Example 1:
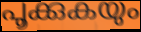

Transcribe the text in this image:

പൂക്കുകയും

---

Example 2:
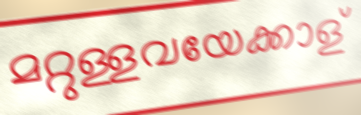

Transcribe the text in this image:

മറ്റുള്ളവയേക്കാള്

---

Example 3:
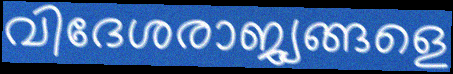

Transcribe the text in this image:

വിദേശരാജ്യങ്ങളെ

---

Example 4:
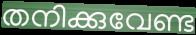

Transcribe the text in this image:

തനിക്കുവേണ്ട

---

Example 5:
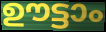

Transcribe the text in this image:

ഊട്ടാം